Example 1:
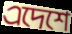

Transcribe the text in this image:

এদেশে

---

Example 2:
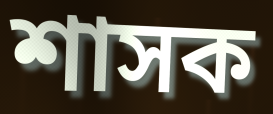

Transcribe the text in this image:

শাসক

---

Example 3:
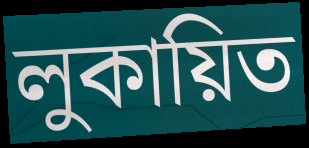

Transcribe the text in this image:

লুকায়িত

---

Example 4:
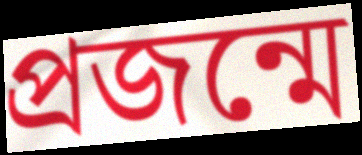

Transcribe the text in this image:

প্রজন্মে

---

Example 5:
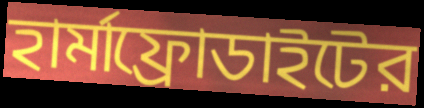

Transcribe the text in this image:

হার্মাফ্রোডাইটের